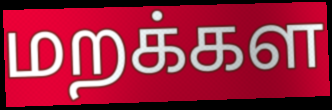
மறக்கள